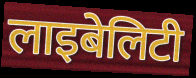
लाइबेलिटी